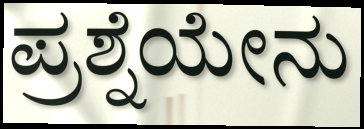
ಪ್ರಶ್ನೆಯೇನು